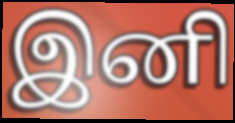
இனி